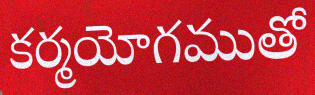
కర్మయోగముతో